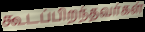
கூடப்பிறந்தவர்கள்